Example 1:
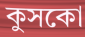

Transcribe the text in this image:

কুসকো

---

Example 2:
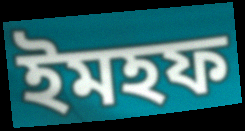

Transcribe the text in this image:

ইমহফ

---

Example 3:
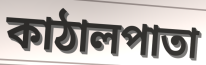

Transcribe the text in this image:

কাঠালপাতা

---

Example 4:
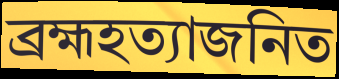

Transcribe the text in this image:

ব্রহ্মহত্যাজনিত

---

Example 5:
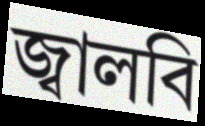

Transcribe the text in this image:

জ্বালবি